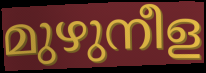
മുഴുനീള